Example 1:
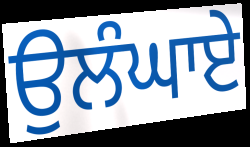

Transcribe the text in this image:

ਉਲੰਘਾਏ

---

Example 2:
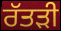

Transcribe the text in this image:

ਰੱਤੜੀ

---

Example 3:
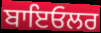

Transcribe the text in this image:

ਬਾਇਓਲਰ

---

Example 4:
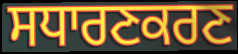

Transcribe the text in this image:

ਸਧਾਰਣਕਰਣ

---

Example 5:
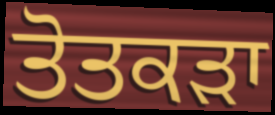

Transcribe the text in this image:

ਤੋਤਕੜਾ